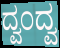
ದ್ವಂದ್ವ